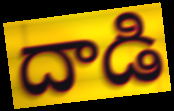
దాడి